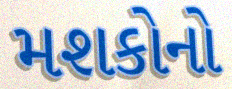
મશકોનો